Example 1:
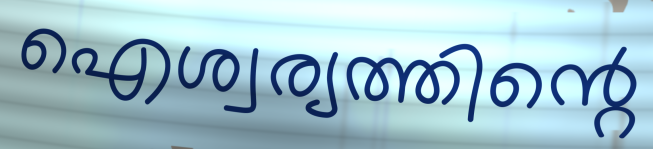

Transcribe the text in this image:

ഐശ്വര്യത്തിന്റെ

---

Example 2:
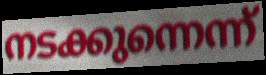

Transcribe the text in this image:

നടക്കുന്നെന്ന്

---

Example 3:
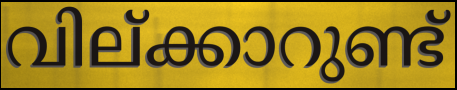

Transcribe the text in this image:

വില്ക്കാറുണ്ട്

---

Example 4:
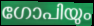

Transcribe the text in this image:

ഗോപിയും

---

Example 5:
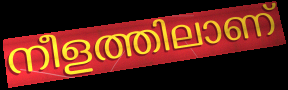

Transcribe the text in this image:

നീളത്തിലാണ്